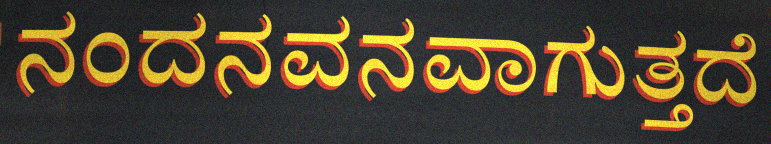
ನಂದನವನವಾಗುತ್ತದೆ